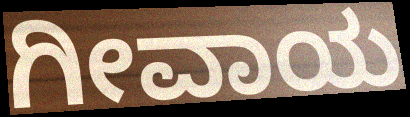
ಗೀವಾಯ